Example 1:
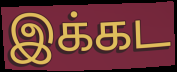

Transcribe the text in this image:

இக்கட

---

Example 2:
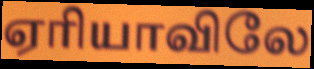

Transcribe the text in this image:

ஏரியாவிலே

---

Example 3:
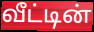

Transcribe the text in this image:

வீட்டின்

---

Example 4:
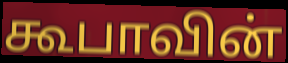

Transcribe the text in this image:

கூபாவின்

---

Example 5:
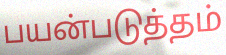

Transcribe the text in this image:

பயன்படுத்தம்